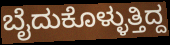
ಬೈದುಕೊಳ್ಳುತ್ತಿದ್ದ